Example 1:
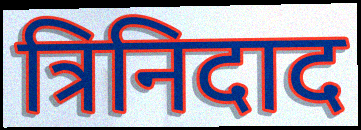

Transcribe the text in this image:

त्रिनिदाद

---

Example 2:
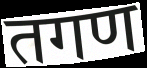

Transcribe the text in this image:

तगण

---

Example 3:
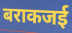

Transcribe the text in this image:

बराकजई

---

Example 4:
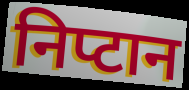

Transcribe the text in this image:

निप्टान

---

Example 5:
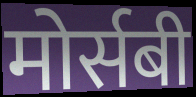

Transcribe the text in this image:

मोर्सबी